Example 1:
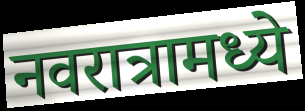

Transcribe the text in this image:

नवरात्रामध्ये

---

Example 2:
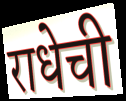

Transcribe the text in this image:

राधेची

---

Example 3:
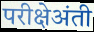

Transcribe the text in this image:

परीक्षेअंती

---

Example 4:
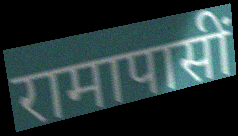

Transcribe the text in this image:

रामापासीं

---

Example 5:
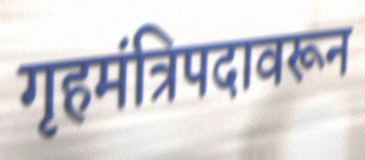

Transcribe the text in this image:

गृहमंत्रिपदावरून